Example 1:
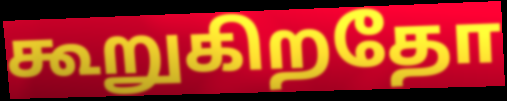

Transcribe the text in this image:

கூறுகிறதோ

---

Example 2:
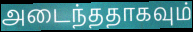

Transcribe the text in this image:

அடைந்ததாகவும்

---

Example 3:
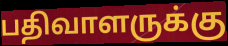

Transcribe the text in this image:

பதிவாளருக்கு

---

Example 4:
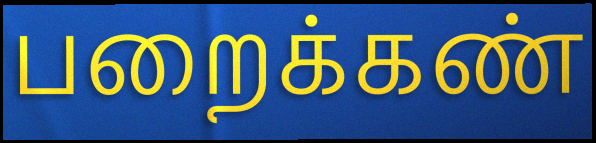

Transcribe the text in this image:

பறைக்கண்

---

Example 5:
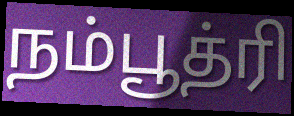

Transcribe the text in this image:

நம்பூத்ரி